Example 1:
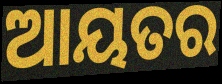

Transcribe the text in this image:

ଆୟତର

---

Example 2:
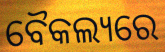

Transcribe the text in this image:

ବୈକଲ୍ୟରେ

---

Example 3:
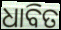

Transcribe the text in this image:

ଧାବିତ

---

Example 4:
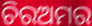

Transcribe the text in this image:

ଚିରଅମର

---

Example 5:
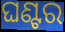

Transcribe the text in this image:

ଘଣ୍ଟର